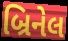
બ્રિનેલ